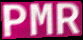
PMR